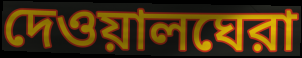
দেওয়ালঘেরা